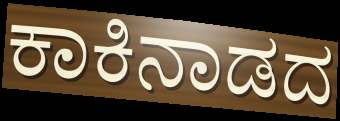
ಕಾಕಿನಾಡದ